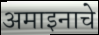
अमाइनाचे